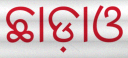
ଛାଡ଼ାଓ